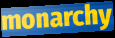
monarchy